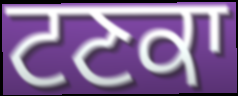
ਟਣਕਾ